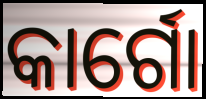
କାର୍ଗୋ